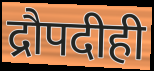
द्रौपदीही